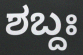
ಶಬ್ದಃ